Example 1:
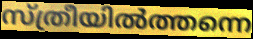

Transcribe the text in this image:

സ്ത്രീയിൽത്തന്നെ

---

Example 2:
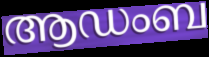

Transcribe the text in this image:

ആഡംബ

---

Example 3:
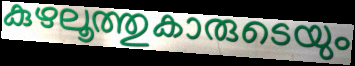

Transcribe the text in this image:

കുഴലൂത്തുകാരുടെയും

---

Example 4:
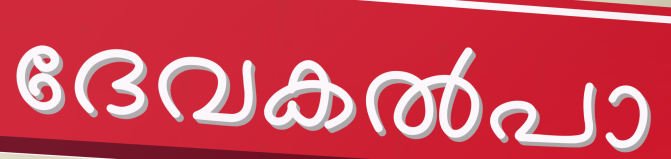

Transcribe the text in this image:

ദേവകൽപാ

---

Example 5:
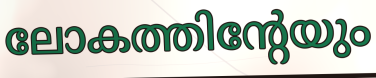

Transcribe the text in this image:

ലോകത്തിന്റേയും